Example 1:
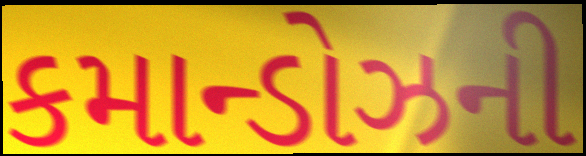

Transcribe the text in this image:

કમાન્ડોઝની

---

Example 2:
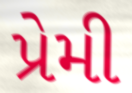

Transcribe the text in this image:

પ્રેમી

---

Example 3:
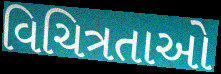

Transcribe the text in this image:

વિચિત્રતાઓ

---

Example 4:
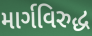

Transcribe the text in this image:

માર્ગવિરુદ્ધ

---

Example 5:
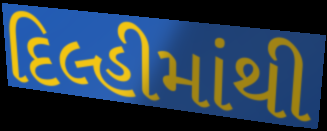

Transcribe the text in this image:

દિલ્હીમાંથી